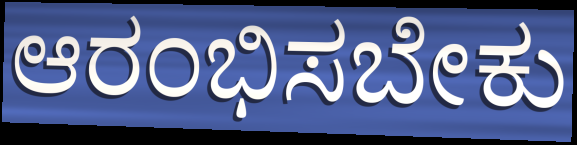
ಆರಂಭಿಸಬೇಕು